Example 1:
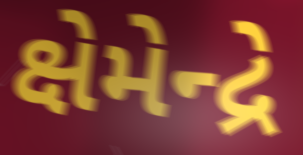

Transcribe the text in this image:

ક્ષેમેન્દ્રે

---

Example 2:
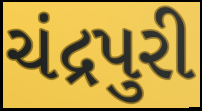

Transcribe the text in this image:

ચંદ્રપુરી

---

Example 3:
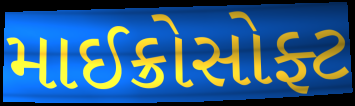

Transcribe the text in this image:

માઈક્રોસોફ્ટ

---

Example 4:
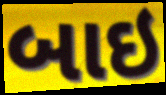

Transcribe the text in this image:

બાઇ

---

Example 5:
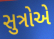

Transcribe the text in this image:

સુત્રોએ